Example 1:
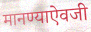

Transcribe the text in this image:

मानण्याऐवजी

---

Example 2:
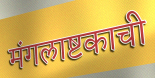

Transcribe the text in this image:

मंगलाष्टकाची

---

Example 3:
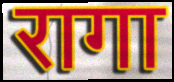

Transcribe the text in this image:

रागा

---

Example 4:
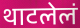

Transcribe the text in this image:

थाटलेलं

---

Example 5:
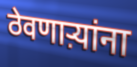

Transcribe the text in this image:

ठेवणाऱ्‍यांना